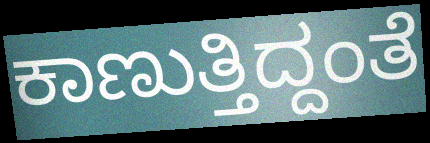
ಕಾಣುತ್ತಿದ್ದಂತೆ